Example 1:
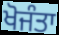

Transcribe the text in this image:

ਖੋਜੰਤਾ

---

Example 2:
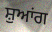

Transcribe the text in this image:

ਸ਼ੁਆਂਗ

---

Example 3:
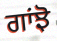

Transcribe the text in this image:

ਗਾਂਝੋ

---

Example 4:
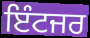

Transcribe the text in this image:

ਇੰਟਜਰ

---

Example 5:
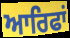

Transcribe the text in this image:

ਆਰਿਫਾਂ